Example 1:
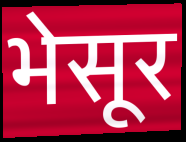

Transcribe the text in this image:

भेसूर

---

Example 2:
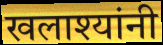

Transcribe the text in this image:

खलाश्यांनी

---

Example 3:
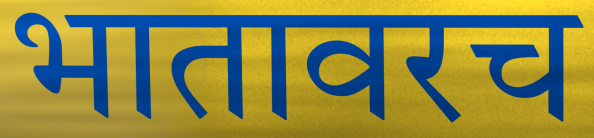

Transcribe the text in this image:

भातावरच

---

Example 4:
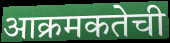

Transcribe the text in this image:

आक्रमकतेची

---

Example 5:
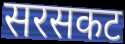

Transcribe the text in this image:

सरसकट